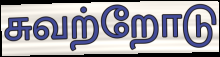
சுவற்றோடு